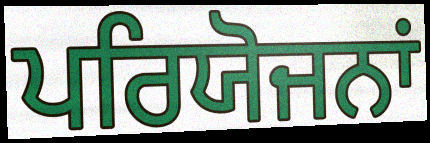
ਪਰਿਯੋਜਨਾਂ